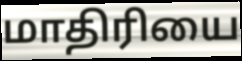
மாதிரியை